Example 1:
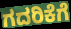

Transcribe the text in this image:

ಗದರಿಕೆಗೆ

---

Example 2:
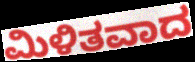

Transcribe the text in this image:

ಮಿಳಿತವಾದ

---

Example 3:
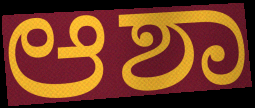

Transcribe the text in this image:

ಆಶಾ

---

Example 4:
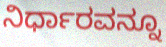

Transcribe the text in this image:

ನಿರ್ಧಾರವನ್ನೂ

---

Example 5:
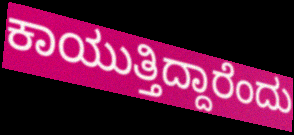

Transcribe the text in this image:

ಕಾಯುತ್ತಿದ್ದಾರೆಂದು